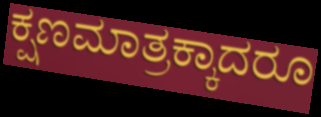
ಕ್ಷಣಮಾತ್ರಕ್ಕಾದರೂ